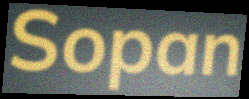
Sopan